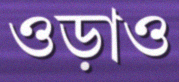
ওড়াও